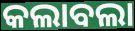
କଲାବଲା